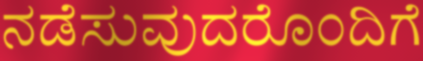
ನಡೆಸುವುದರೊಂದಿಗೆ